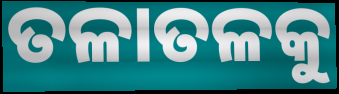
ତଳାତଳକୁ